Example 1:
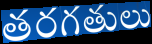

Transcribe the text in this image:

తరగతులు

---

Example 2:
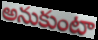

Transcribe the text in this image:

అనుకుంటా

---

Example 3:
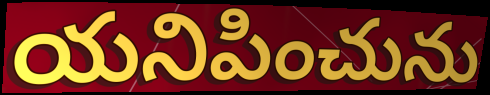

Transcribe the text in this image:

యనిపించును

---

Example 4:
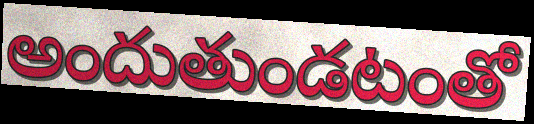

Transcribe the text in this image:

అందుతుండటంతో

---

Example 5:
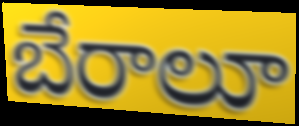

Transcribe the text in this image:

బేరాలూ